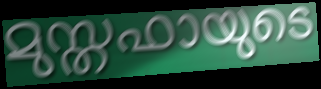
മുസ്തഫായുടെ